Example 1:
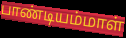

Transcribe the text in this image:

பாண்டியம்மாள்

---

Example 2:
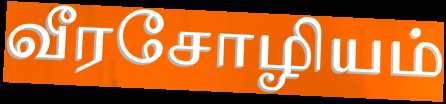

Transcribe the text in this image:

வீரசோழியம்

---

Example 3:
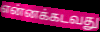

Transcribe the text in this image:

என்னக்கடவது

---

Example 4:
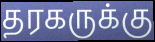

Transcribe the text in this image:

தரகருக்கு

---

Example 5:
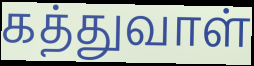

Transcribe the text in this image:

கத்துவாள்